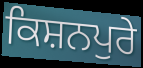
ਕਿਸ਼ਨਪੁਰੇ